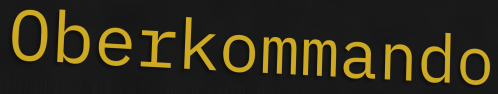
Oberkommando